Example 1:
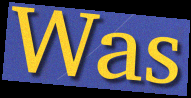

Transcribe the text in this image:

Was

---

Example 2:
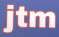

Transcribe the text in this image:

jtm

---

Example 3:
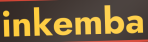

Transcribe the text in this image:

inkemba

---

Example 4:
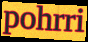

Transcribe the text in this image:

pohrri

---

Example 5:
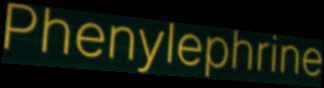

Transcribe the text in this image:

Phenylephrine